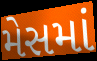
મેસમાં